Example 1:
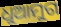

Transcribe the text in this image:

ଧୁଆମୁଗ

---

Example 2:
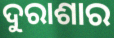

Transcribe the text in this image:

ଦୁରାଶାର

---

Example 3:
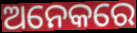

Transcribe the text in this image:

ଅନେକରେ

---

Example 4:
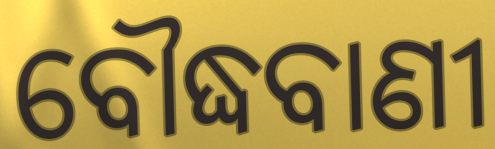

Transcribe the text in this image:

ବୌଦ୍ଧବାଣୀ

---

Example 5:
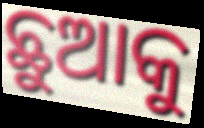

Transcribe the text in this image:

ଛୁଆକୁ